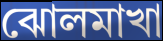
ঝোলমাখা